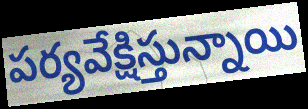
పర్యవేక్షిస్తున్నాయి